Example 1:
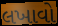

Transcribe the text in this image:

લખાવો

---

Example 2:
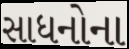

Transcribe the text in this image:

સાધનોના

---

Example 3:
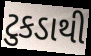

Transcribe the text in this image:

ટુકડાથી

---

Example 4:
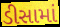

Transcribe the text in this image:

ડીસામાં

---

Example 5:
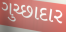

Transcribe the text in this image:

ગુચ્છાદાર